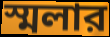
স্মলার